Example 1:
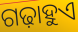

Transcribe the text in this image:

ଗଢ଼ାହୁଏ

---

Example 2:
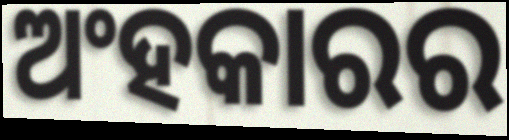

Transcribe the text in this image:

ଅଂହକାରର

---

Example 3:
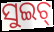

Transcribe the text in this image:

ସୁଇଚ୍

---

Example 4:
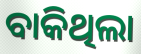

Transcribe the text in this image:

ବାକିଥିଲା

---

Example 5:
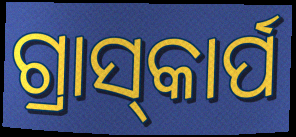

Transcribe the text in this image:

ଗ୍ରାସ୍‌କାର୍ପ